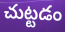
చుట్టడం